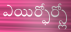
ఎయిర్ఫోర్స్లో